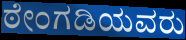
ಠೇಂಗಡಿಯವರು